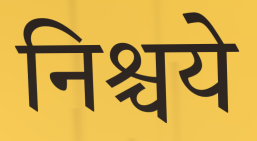
निश्चये